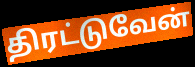
திரட்டுவேன்